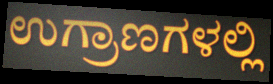
ಉಗ್ರಾಣಗಳಲ್ಲಿ